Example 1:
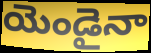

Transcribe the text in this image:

యెండైనా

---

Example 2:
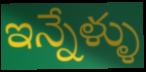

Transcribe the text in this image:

ఇన్నేళ్ళు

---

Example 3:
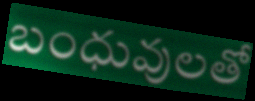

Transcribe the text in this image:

బంధువులతో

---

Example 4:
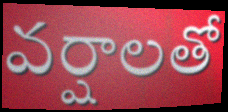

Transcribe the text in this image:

వర్షాలతో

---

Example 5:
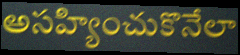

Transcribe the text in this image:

అసహ్యించుకొనేలా